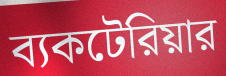
ব্যকটেরিয়ার